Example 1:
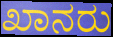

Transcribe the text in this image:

ಖಾನರು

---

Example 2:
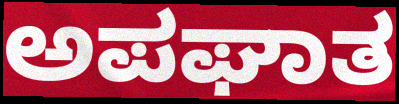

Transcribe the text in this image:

ಅಪಘಾತ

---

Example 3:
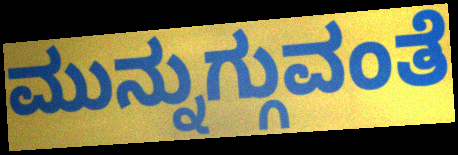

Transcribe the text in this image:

ಮುನ್ನುಗ್ಗುವಂತೆ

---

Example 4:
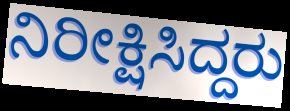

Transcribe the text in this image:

ನಿರೀಕ್ಷಿಸಿದ್ದರು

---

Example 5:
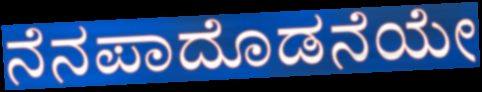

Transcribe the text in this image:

ನೆನಪಾದೊಡನೆಯೇ